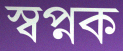
স্বপ্নক